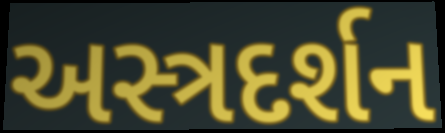
અસ્ત્રદર્શન